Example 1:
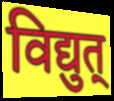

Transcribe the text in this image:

विद्युत्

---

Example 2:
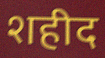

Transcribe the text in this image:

शहीद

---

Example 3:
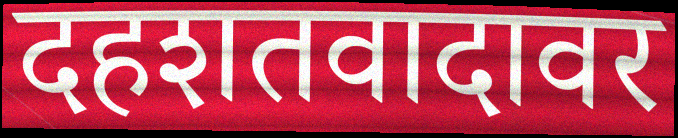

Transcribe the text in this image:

दहशतवादावर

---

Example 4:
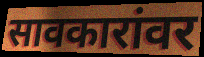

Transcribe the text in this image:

सावकारांवर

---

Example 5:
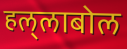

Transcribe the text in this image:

हल्लाबोल